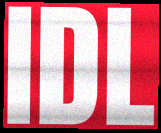
IDL